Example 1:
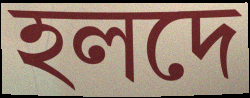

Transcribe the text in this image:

হলদে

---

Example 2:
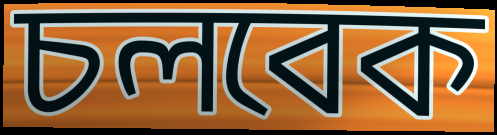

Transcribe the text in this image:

চলবেক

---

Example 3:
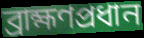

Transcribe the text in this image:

ব্রাহ্মণপ্রধান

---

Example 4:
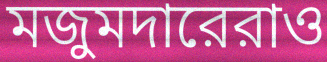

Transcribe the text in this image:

মজুমদারেরাও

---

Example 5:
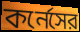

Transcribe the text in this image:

কর্নেসের